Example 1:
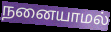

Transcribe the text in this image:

நனையாமல்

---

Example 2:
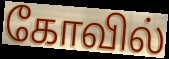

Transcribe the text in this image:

கோவில்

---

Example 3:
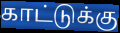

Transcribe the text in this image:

காட்டுக்கு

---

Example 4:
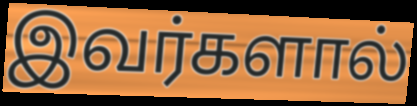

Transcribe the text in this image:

இவர்களால்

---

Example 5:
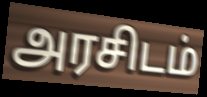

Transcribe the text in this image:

அரசிடம்